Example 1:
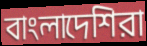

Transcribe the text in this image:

বাংলাদেশিরা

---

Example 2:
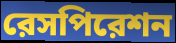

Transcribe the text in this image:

রেসপিরেশন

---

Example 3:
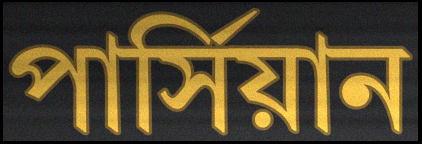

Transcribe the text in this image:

পার্সিয়ান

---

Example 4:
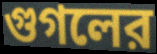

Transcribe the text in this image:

গুগলের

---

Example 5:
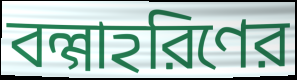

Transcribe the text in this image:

বল্গাহরিণের